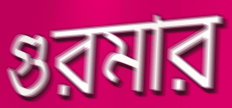
গুরমার